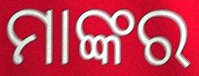
ମାଙ୍କର